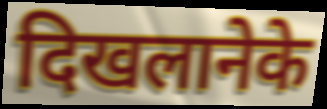
दिखलानेके